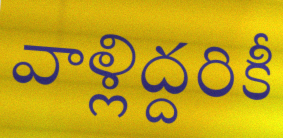
వాళ్లిద్దరికీ